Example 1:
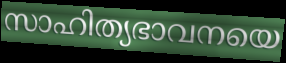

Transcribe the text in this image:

സാഹിത്യഭാവനയെ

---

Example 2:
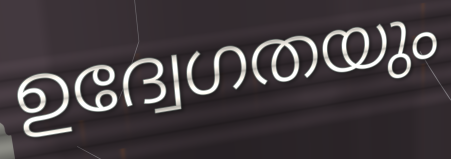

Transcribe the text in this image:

ഉദ്വേഗതയും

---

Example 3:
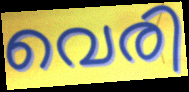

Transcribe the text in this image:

വെരി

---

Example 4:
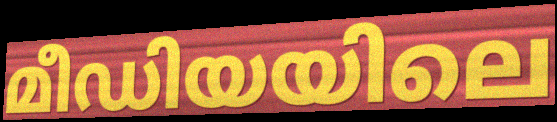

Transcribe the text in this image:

മീഡിയയിലെ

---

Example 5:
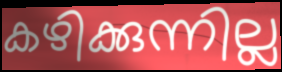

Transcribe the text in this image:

കഴിക്കുന്നില്ല